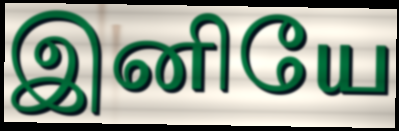
இனியே